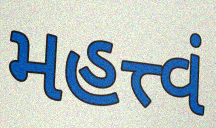
મહત્ત્વં